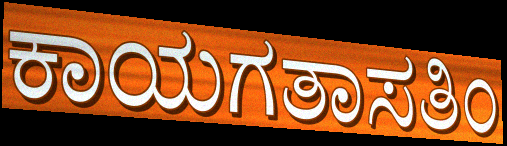
ಕಾಯಗತಾಸತಿಂ